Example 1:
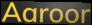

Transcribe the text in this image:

Aaroor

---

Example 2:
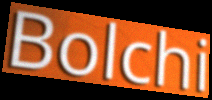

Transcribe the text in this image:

Bolchi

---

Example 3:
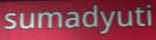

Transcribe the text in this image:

sumadyuti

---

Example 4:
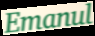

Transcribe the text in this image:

Emanul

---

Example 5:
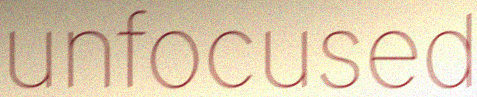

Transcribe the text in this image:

unfocused